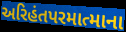
અરિહંતપરમાત્માના